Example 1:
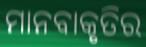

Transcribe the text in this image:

ମାନବାକୃତିର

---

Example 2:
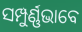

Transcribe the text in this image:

ସମ୍ପୁର୍ଣ୍ଣଭାବେ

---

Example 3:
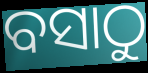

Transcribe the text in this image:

ବସାଠୁ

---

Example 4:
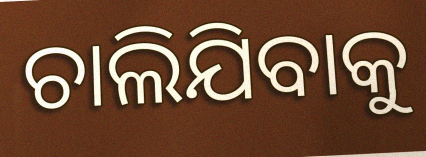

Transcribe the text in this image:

ଚାଲିଯିବାକୁ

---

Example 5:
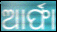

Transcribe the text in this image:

ଆର୍ଫା